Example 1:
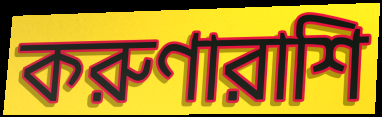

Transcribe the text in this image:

করুণারাশি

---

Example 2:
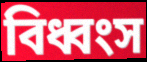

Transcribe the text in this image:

বিধ্বংস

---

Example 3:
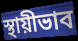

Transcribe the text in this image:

স্থায়ীভাব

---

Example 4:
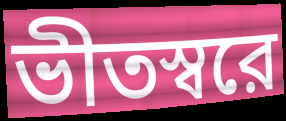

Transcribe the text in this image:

ভীতস্বরে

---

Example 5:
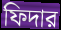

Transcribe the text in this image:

ফিদার